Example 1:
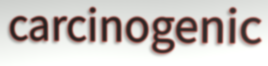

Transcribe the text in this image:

carcinogenic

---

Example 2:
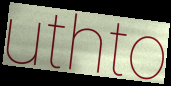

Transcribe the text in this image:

uthto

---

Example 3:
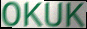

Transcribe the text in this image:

OKUK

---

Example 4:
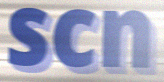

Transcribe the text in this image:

scn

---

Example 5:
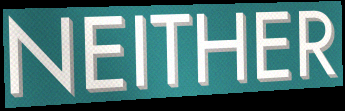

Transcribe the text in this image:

NEITHER